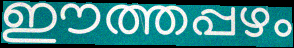
ഈത്തപ്പഴം